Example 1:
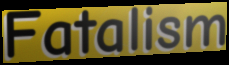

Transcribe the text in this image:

Fatalism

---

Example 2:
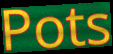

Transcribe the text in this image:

Pots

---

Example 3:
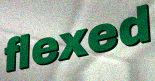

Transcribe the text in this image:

flexed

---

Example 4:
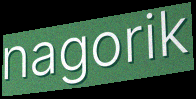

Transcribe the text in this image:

nagorik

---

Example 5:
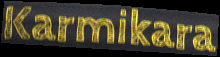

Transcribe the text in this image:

Karmikara